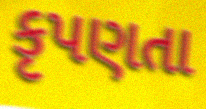
કૃપણતા